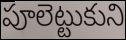
పూలెట్టుకుని